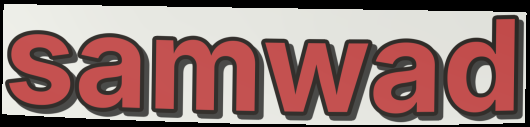
samwad